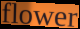
flower